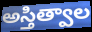
అస్తిత్వాల